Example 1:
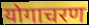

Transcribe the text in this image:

योगाचरण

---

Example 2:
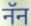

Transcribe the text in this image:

नॅन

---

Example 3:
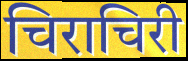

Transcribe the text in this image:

चिराचिरी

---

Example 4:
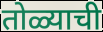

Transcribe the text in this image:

तोळ्याची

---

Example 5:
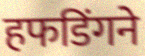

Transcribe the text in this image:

हफडिंगने